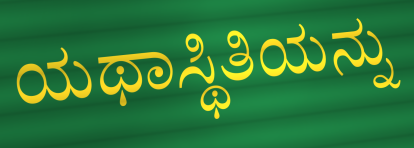
ಯಥಾಸ್ಥಿತಿಯನ್ನು